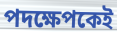
পদক্ষেপকেই